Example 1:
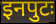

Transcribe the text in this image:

इनपुटः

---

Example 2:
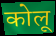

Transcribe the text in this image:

कोलू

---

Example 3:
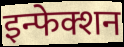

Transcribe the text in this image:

इन्‍फेक्‍शन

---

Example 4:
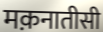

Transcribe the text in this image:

मक़नातीसी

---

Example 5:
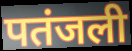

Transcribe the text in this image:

पतंजली